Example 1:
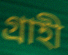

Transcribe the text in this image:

গ্রাহী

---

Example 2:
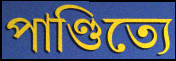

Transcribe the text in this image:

পাণ্ডিত্যে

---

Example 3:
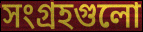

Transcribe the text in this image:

সংগ্রহগুলো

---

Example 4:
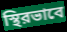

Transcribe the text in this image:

স্থিরভাবে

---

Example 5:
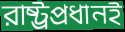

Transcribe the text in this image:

রাষ্ট্রপ্রধানই